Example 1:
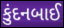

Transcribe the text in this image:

કુંદનબાઈ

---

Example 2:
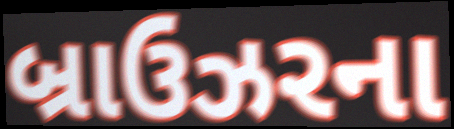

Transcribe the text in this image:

બ્રાઉઝરના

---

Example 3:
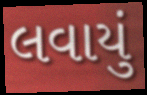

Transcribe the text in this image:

લવાયું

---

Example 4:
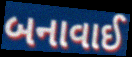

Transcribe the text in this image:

બનાવાઈ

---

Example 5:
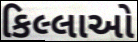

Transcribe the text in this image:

કિલ્લાઓ